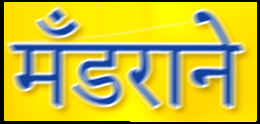
मँडराने